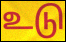
உடு